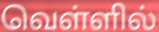
வெள்ளில்